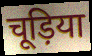
चूड़िया